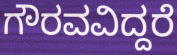
ಗೌರವವಿದ್ದರೆ